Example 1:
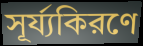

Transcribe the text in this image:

সূর্য্যকিরণে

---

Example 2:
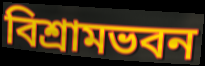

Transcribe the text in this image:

বিশ্রামভবন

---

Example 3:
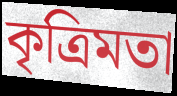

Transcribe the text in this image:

কৃত্রিমতা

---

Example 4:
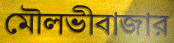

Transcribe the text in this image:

মৌলভীবাজার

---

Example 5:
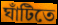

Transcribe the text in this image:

ঘাঁটিতে